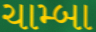
ચામ્બા